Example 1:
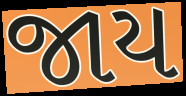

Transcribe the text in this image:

જાય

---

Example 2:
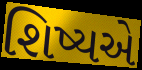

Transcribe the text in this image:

શિષ્યએ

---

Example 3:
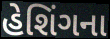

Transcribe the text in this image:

હેશિંગના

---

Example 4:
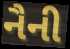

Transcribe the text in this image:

નૈની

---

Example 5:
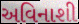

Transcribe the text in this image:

અવિનાશી